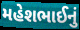
મહેશભાઈનું